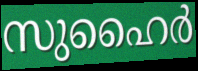
സുഹൈർ